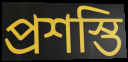
প্রশস্তি